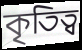
কৃতিত্ব